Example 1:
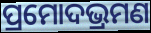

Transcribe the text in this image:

ପ୍ରମୋଦଭ୍ରମଣ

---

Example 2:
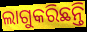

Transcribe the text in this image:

ଲାଗୁକରିଛନ୍ତି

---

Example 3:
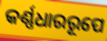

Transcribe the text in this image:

କର୍ଣ୍ଣଧାରରୂପେ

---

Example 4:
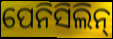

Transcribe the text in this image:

ପେନିସିଲିନ୍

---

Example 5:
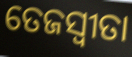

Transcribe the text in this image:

ତେଜସ୍ଵୀତା